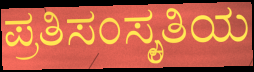
ಪ್ರತಿಸಂಸ್ಕೃತಿಯ